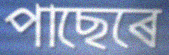
পাছেৰে